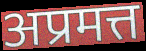
अप्रमत्त